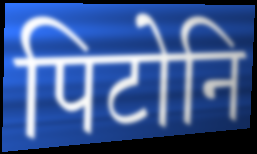
पिटोनि